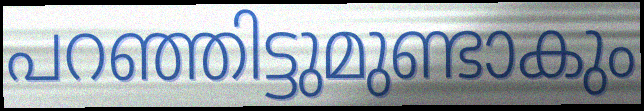
പറഞ്ഞിട്ടുമുണ്ടാകും